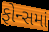
ફોન્સમાં